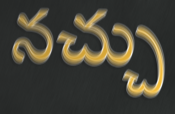
నచ్చు